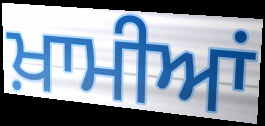
ਖ਼ਾਮੀਆਂ